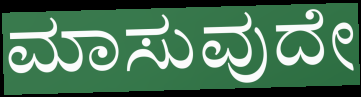
ಮಾಸುವುದೇ